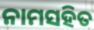
ନାମସହିତ